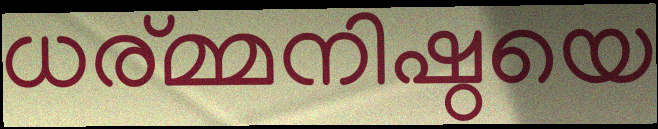
ധര്മ്മനിഷ്ഠയെ